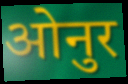
ओनुर